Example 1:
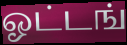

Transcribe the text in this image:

ஓட்டங்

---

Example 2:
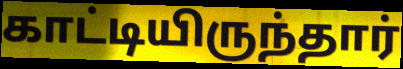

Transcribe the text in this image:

காட்டியிருந்தார்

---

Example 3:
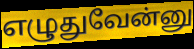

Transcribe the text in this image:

எழுதுவேன்னு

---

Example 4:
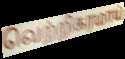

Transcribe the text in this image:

வெற்றிகரமாய்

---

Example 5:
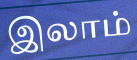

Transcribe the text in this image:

இலாம்